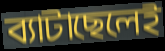
ব্যাটাছেলেই